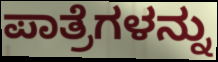
ಪಾತ್ರೆಗಳನ್ನು